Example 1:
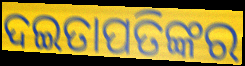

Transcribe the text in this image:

ଦଇତାପତିଙ୍କର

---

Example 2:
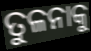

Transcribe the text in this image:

ତୁଳନାକୁ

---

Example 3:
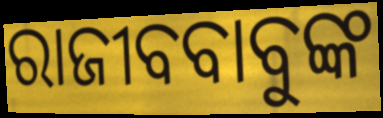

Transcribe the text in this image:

ରାଜୀବବାବୁଙ୍କ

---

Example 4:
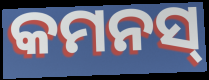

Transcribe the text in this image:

କମନସ୍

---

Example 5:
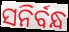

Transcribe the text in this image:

ସନିର୍ବନ୍ଧ